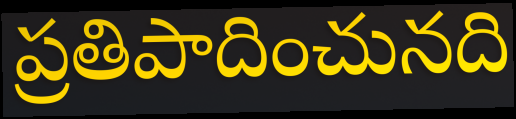
ప్రతిపాదించునది